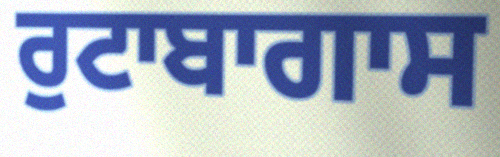
ਰੁਟਾਬਾਗਾਸ